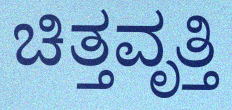
ಚಿತ್ತವೃತ್ತಿ